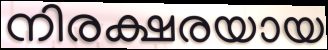
നിരക്ഷരയായ